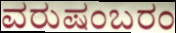
ವರುಷಂಬರಂ